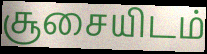
சூசையிடம்